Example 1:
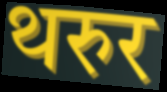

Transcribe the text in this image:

थरुर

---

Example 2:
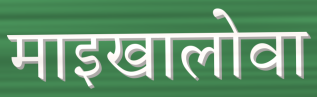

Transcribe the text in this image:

माइखालोवा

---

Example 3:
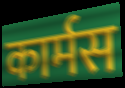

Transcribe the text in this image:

कार्मस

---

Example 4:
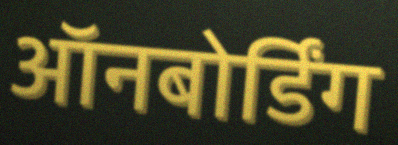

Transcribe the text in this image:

ऑनबोर्डिंग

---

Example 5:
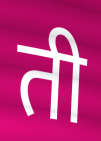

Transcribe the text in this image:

ती